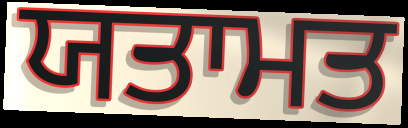
ਯਤਾਮਤ